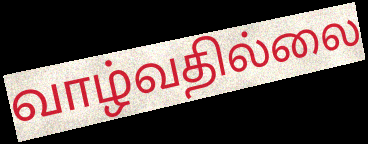
வாழ்வதில்லை